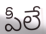
పీలే